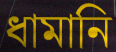
ধামানি